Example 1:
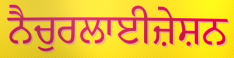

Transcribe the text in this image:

ਨੈਚੁਰਲਾਈਜ਼ੇਸ਼ਨ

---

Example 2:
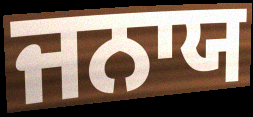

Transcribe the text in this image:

ਜਨਾਯ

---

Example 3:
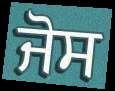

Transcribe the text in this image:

ਜੋਸ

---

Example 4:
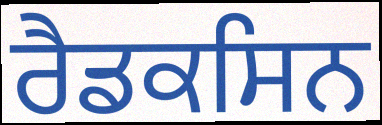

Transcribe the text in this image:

ਰੈਡਕਸਿਨ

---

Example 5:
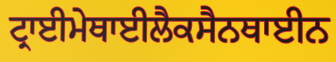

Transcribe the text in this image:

ਟ੍ਰਾਈਮੇਥਾਈਲੈਕਸੈਨਥਾਈਨ